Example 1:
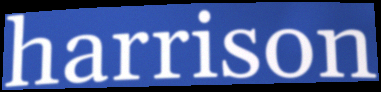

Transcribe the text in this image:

harrison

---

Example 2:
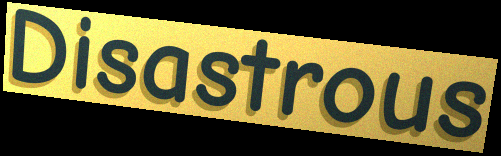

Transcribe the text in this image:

Disastrous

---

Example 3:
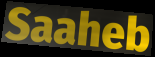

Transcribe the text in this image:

Saaheb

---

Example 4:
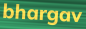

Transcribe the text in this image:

bhargav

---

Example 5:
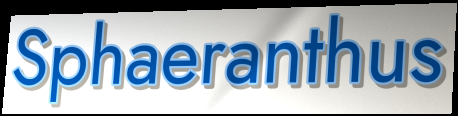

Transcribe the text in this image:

Sphaeranthus